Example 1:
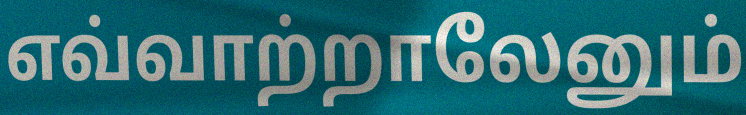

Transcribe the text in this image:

எவ்வாற்றாலேனும்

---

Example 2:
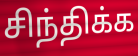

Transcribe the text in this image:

சிந்திக்க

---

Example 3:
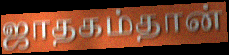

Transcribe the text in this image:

ஜாதகம்தான்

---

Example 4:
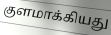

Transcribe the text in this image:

குளமாக்கியது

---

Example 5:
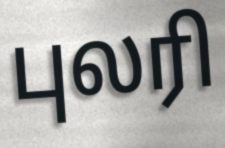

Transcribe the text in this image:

புலரி